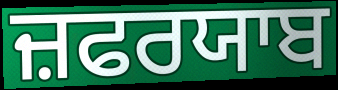
ਜ਼ਫਰਯਾਬ